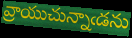
వ్రాయుచున్నాఁడను